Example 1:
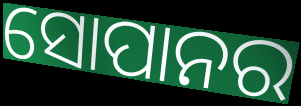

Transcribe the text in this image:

ସୋପାନର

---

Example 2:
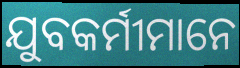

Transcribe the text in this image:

ଯୁବକର୍ମୀମାନେ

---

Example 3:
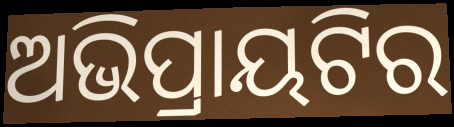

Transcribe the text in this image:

ଅଭିପ୍ରାୟଟିର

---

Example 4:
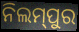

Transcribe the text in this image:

ନିଲମ୍‍ପୁର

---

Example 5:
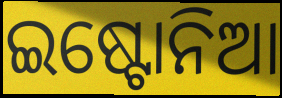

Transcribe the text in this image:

ଇଷ୍ଟୋନିଆ